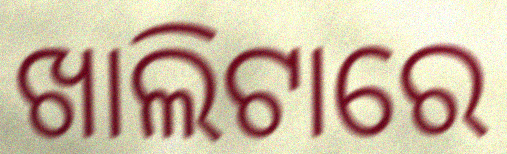
ଖାଲିଟାରେ